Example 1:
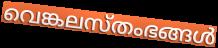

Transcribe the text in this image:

വെങ്കലസ്തംഭങ്ങൾ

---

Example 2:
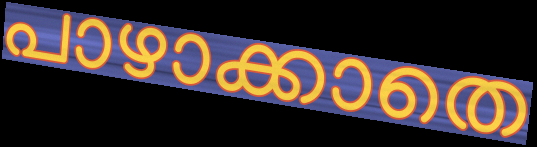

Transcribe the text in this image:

പാഴാക്കാതെ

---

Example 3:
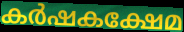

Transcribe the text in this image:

കർഷകക്ഷേമ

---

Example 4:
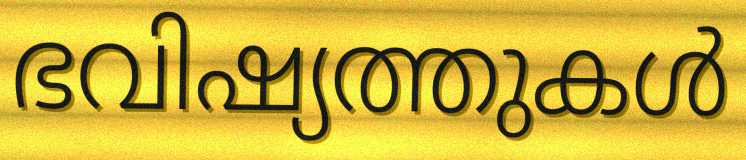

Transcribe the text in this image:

ഭവിഷ്യത്തുകൾ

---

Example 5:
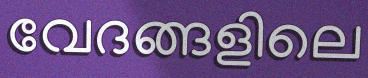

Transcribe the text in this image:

വേദങ്ങളിലെ